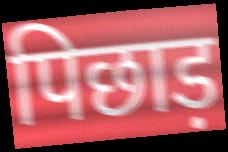
पिछाड़